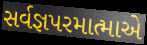
સર્વજ્ઞપરમાત્માએ